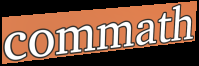
commath